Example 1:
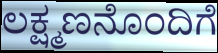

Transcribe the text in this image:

ಲಕ್ಷ್ಮಣನೊಂದಿಗೆ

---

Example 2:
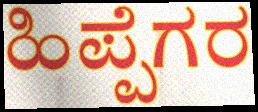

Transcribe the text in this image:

ಹಿಪ್ಪೆಗರ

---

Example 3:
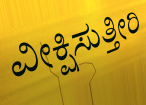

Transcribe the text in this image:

ವೀಕ್ಷಿಸುತ್ತೀರಿ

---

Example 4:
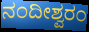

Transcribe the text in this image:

ನಂದೀಶ್ವರಂ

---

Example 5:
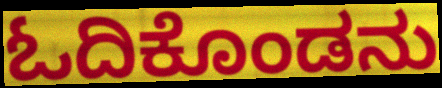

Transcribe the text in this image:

ಓದಿಕೊಂಡನು